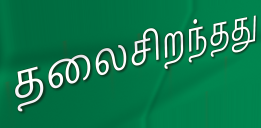
தலைசிறந்தது